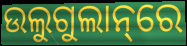
ଉଲୁଗୁଲାନ୍‌ରେ